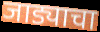
जाड्याचा